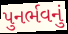
પુનર્ભવનું